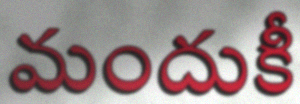
మందుకీ